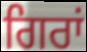
ਗਿਰਾਂ